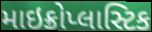
માઇક્રોપ્લાસ્ટિક